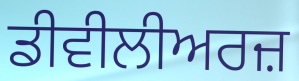
ਡੀਵੀਲੀਅਰਜ਼